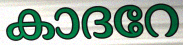
കാദറേ